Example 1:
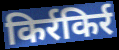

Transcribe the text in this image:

किर्रकिर्र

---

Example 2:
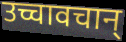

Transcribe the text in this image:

उच्चावचान्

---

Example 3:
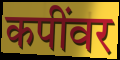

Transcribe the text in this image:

कपींवर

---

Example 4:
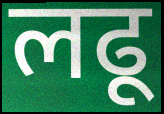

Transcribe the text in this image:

लढू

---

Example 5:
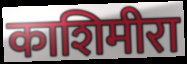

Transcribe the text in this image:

काशिमीरा